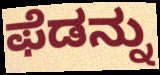
ಫೆಡನ್ನು